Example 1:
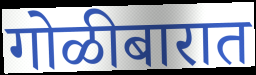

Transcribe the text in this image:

गोळीबारात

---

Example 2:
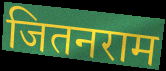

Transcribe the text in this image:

जितनराम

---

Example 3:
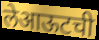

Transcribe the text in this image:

लेआऊटची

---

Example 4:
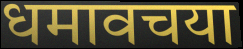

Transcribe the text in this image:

धमावचया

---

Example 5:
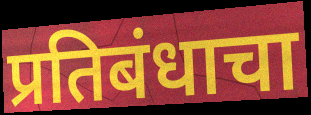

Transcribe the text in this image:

प्रतिबंधाचा